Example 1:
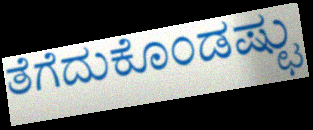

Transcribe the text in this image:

ತೆಗೆದುಕೊಂಡಷ್ಟು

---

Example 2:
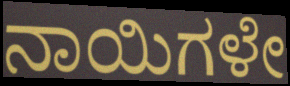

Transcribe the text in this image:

ನಾಯಿಗಳೇ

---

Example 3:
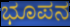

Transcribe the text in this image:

ಭೂಪನ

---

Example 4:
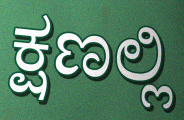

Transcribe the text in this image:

ಕ್ಷಣಲ್ಲಿ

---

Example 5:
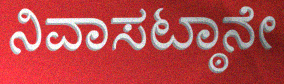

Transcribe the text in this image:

ನಿವಾಸಟ್ಠಾನೇ